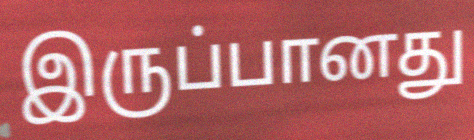
இருப்பானது